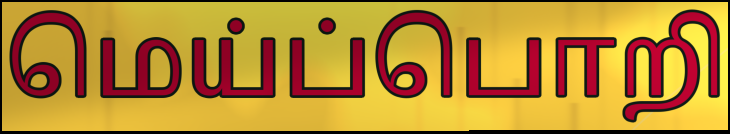
மெய்ப்பொறி